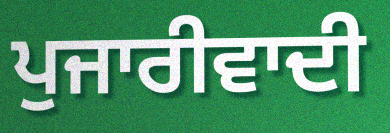
ਪੁਜਾਰੀਵਾਦੀ